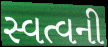
સ્વત્વની